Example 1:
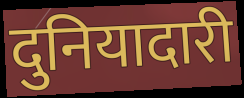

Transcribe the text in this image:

दुनियादारी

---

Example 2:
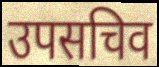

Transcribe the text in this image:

उपसचिव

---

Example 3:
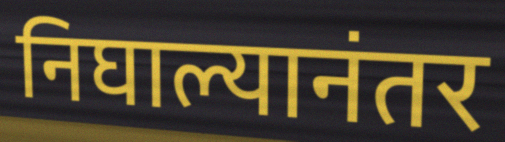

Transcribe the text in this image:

निघाल्यानंतर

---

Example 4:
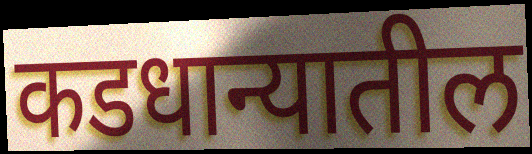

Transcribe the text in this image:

कडधान्यातील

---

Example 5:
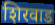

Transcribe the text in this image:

शिरवाड